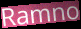
Ramno